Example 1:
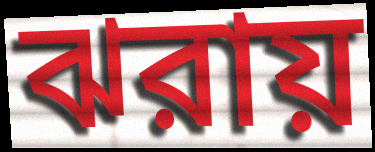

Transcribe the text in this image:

ঝরায়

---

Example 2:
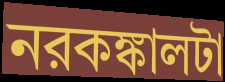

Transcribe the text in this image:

নরকঙ্কালটা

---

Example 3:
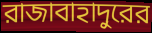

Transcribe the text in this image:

রাজাবাহাদুরের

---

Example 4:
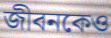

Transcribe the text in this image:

জীবনকেও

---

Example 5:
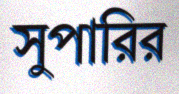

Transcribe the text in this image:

সুপারির